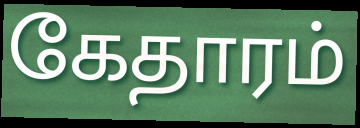
கேதாரம்